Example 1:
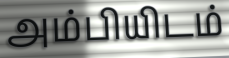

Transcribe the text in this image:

அம்பியிடம்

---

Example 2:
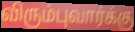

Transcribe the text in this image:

விரும்புவார்க்கு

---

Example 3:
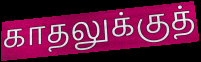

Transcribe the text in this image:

காதலுக்குத்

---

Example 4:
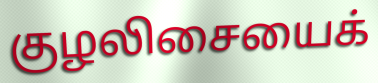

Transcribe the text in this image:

குழலிசையைக்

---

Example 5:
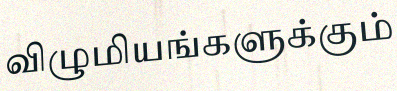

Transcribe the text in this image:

விழுமியங்களுக்கும்